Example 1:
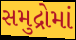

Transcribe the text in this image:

સમુદ્રોમાં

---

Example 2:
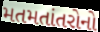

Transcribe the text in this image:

મતમતાંતરોનો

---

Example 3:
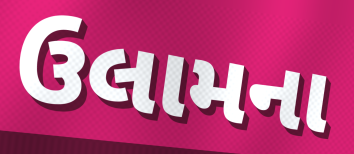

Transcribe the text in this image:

ઉલામના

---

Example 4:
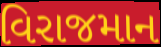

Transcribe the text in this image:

વિરાજમાન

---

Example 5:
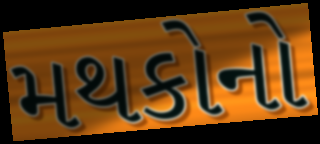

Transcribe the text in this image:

મથકોનો